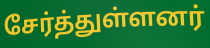
சேர்த்துள்ளனர்